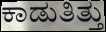
ಕಾಡುತಿತ್ತು